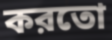
করতো